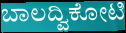
ಬಾಲದ್ವಿಕೋಟಿ